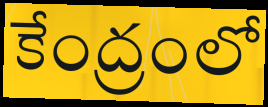
కేంద్రంలో